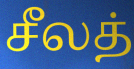
சீலத்